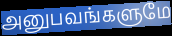
அனுபவங்களுமே